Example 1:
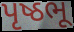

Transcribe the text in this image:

પૃષ્ઠભૂ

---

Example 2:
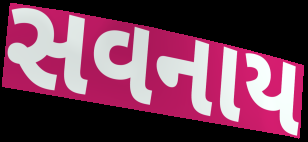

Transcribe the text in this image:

સવનાય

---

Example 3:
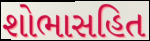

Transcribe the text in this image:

શોભાસહિત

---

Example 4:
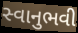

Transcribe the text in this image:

સ્વાનુભવી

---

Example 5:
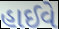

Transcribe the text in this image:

હાઈવે